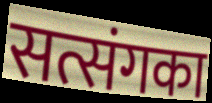
सत्संगका